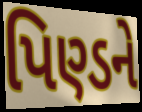
પિણ્ડને